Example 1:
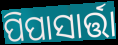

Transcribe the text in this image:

ପିପାସାର୍ତ୍ତା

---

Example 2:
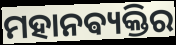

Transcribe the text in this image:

ମହାନଵ୍ୟକ୍ତିର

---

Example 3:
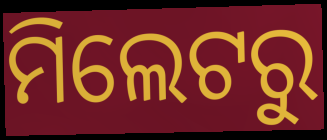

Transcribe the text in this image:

ମିଲେଟରୁ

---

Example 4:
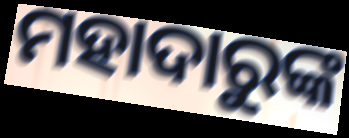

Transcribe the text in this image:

ମହାଦାରୁଙ୍କ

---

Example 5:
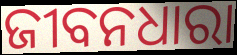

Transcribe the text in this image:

ଜୀବନଧାରା